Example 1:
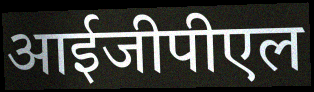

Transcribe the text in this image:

आईजीपीएल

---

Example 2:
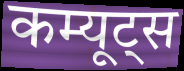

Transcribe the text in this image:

कम्यूट्स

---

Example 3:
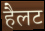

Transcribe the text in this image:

हैलट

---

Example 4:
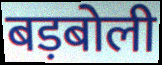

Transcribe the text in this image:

बड़बोली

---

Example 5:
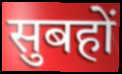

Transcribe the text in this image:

सुबहों